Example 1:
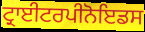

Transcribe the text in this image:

ਟ੍ਰਾਈਟਰਪੀਨੋਇਡਸ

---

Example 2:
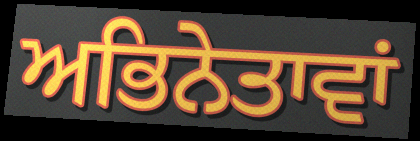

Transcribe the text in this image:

ਅਭਿਨੇਤਾਵਾਂ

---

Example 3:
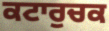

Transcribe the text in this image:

ਕਟਾਰੁਚਕ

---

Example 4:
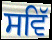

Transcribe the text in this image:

ਸਵਿੱ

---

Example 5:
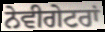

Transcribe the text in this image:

ਨੇਵੀਗੇਟਰਾਂ